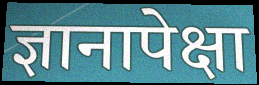
ज्ञानापेक्षा